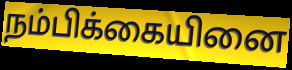
நம்பிக்கையினை